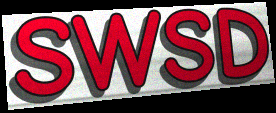
SWSD